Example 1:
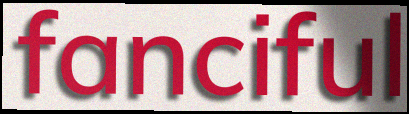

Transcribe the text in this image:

fanciful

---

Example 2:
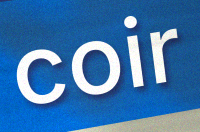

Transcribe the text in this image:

coir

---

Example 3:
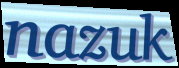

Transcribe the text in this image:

nazuk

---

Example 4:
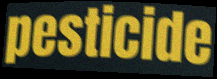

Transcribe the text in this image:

pesticide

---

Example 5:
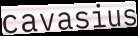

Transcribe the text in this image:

cavasius